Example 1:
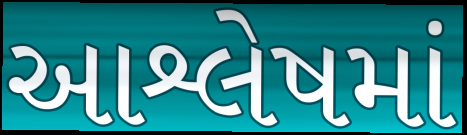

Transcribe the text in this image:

આશ્લેષમાં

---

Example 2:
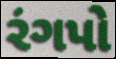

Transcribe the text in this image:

રંગપો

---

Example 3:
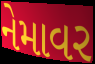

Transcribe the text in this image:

નેમાવર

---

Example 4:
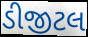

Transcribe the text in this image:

ડીજીટલ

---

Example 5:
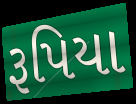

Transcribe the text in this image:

રૂપિયા